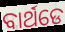
ବାର୍ଥଡେ